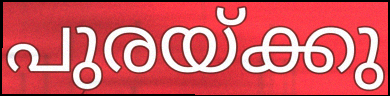
പുരയ്ക്കു